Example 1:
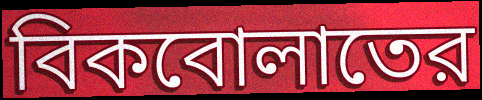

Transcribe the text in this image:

বিকবোলাতের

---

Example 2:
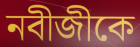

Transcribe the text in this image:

নবীজীকে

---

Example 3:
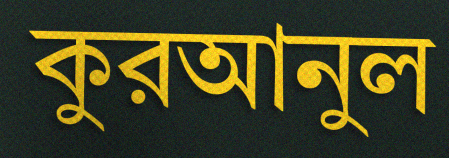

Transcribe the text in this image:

কুরআনুল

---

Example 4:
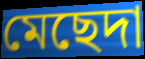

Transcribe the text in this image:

মেছেদা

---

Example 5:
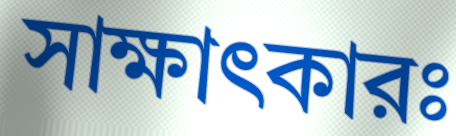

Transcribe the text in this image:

সাক্ষাৎকারঃ